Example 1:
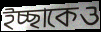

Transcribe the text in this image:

ইচ্ছাকেও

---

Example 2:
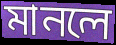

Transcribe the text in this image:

মানলে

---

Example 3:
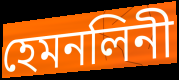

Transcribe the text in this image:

হেমনলিনী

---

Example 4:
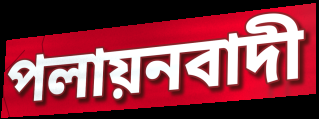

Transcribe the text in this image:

পলায়নবাদী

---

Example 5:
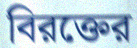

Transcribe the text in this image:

বিরক্তের